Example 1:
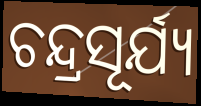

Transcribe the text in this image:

ଚନ୍ଦ୍ରସୂର୍ଯ୍ୟ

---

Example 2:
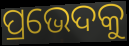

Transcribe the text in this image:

ପ୍ରଭେଦକୁ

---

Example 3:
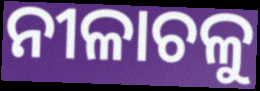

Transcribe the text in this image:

ନୀଳାଚଳୁ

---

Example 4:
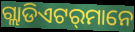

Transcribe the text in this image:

ଗ୍ଲାଡିଏଟର୍‍ମାନେ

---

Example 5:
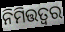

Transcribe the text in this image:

ନିମିତ୍ତତ୍ଵର